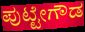
ಪುಟ್ಟೇಗೌಡ